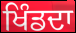
ਖਿੰਡਦਾ